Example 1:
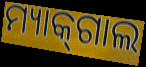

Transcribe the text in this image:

ମ୍ୟାକ୍‌ଗାଲ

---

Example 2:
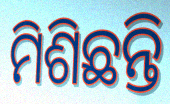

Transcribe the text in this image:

ମିଶିଛନ୍ତି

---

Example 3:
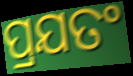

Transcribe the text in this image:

ପ୍ରଯତଂ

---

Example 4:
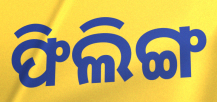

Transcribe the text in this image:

ଫିଲିଙ୍ଗ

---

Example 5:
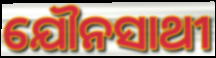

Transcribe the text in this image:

ଯୌନସାଥୀ